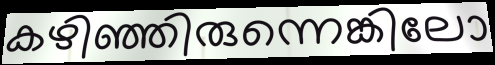
കഴിഞ്ഞിരുന്നെങ്കിലോ